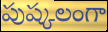
పుష్కలంగా